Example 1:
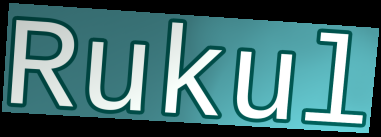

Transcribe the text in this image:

Rukul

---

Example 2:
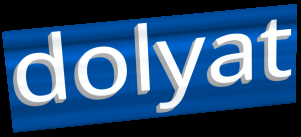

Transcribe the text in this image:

dolyat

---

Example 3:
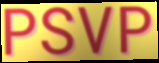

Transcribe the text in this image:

PSVP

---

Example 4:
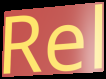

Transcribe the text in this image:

Rel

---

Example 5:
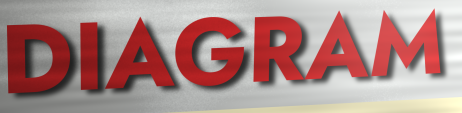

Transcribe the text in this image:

DIAGRAM